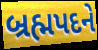
બ્રહ્મપદને